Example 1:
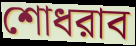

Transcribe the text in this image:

শোধরাব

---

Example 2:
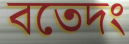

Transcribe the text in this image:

বতেদং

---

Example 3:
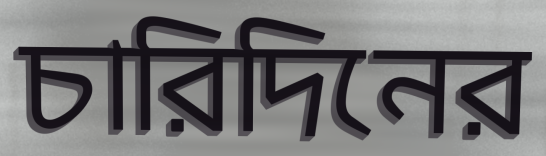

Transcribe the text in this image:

চারিদিনের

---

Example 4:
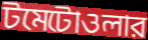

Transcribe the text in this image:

টমেটোওলার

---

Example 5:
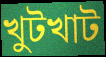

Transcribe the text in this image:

খুটখাট